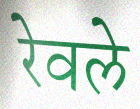
रेवले